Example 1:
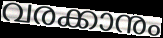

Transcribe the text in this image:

വരക്കാനും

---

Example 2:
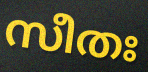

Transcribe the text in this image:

സീതഃ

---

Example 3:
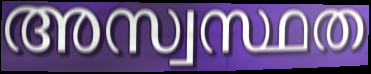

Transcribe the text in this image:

അസ്വസ്ഥത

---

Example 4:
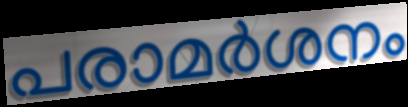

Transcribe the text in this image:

പരാമർശനം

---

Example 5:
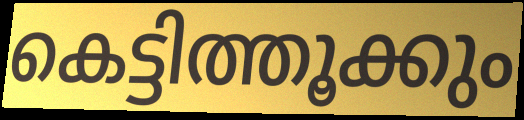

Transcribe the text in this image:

കെട്ടിത്തൂക്കും